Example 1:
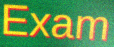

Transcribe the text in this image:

Exam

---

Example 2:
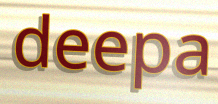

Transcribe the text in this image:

deepa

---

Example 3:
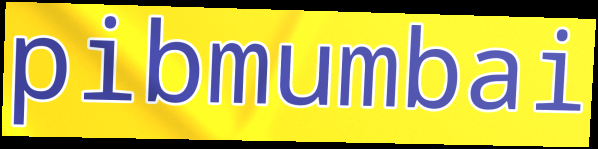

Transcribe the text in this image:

pibmumbai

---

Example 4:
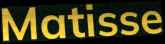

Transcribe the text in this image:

Matisse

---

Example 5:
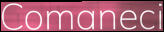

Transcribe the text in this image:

Comaneci